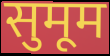
सुमूम